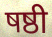
षष्ठी